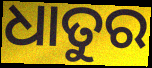
ଧାତୁର